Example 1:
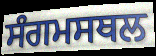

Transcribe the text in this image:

ਸੰਗਮਸਥਲ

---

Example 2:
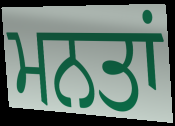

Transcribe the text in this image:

ਮਨਤਾਂ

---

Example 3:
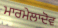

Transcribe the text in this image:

ਮਾਰਮੇਲਾਦੋਵ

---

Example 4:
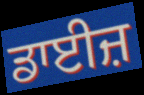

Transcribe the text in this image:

ਡਾਈਜ਼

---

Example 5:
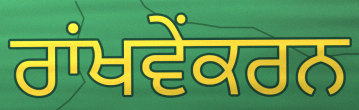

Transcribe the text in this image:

ਰਾਂਖਵੇਂਕਰਨ